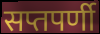
सप्तपर्णी